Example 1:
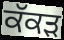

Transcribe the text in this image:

ਕੱਕਡ਼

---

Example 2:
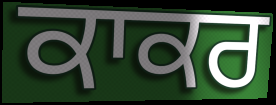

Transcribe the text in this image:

ਕਾਕਰ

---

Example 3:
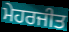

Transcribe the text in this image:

ਮੇਹਰਜੀਤ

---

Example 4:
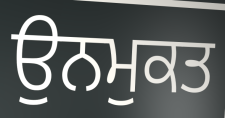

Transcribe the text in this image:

ਉਨਮੁਕਤ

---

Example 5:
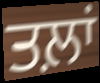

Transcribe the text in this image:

ਤਲ਼ਾਂ